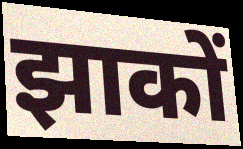
झाकों